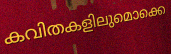
കവിതകളിലുമൊക്കെ